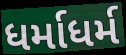
ધર્માધર્મ